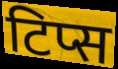
टिप्‍स